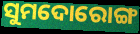
ସୁମଦୋରୋଙ୍ଗ